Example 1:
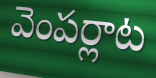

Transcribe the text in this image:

వెంపర్లాట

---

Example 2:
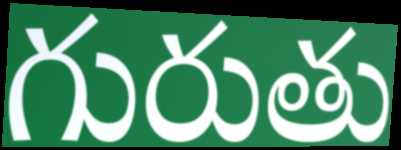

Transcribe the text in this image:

గురుతు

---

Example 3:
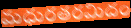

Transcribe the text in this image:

మధురతరమిదం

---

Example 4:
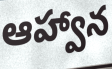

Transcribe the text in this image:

ఆహ్వాన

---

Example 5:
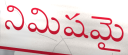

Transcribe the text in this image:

నిమిషమై